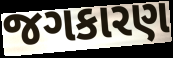
જગકારણ